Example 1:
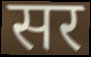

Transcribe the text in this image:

सर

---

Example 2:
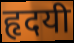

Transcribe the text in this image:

हृदयी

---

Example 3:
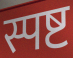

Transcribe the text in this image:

स्पष्ट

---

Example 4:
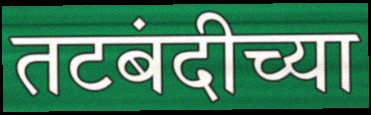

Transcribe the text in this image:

तटबंदीच्या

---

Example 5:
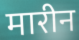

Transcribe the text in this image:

मारीन